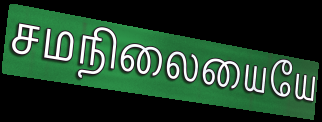
சமநிலையையே